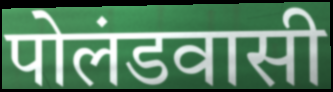
पोलंडवासी